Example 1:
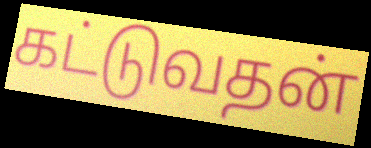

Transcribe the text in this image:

கட்டுவதன்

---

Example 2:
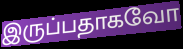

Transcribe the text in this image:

இருப்பதாகவோ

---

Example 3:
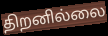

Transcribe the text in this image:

திறனில்லை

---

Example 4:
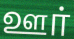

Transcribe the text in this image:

ஊர்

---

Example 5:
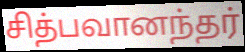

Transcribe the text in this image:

சித்பவானந்தர்